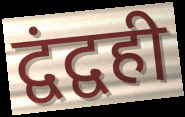
द्वंद्वही